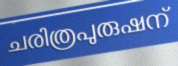
ചരിത്രപുരുഷന്